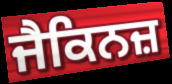
ਜੈਕਿਨਜ਼